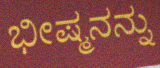
ಭೀಷ್ಮನನ್ನು